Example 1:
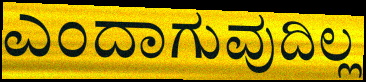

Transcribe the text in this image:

ಎಂದಾಗುವುದಿಲ್ಲ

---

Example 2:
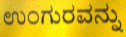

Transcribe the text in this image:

ಉಂಗುರವನ್ನು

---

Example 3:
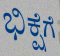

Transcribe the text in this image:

ಭಿಕ್ಷೆಗೆ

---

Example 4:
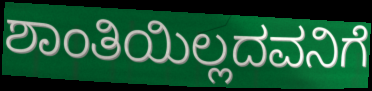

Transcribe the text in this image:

ಶಾಂತಿಯಿಲ್ಲದವನಿಗೆ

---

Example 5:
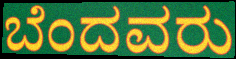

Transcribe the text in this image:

ಬೆಂದವರು